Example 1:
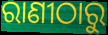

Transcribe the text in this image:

ରାଣୀଠାରୁ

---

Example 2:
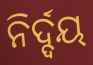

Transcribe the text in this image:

ନିର୍ଦ୍ଦୟ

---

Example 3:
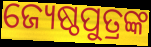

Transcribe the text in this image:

ଜ୍ୟେଷ୍ଠପୁତ୍ରଙ୍କ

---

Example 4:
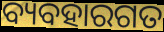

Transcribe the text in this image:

ବ୍ୟବହାରଗତ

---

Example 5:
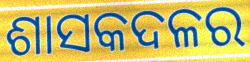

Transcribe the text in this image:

ଶାସକଦଳର